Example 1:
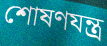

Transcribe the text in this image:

শোষণযন্ত্র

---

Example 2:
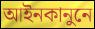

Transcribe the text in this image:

আইনকানুনে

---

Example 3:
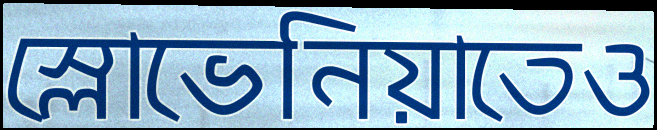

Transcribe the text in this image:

স্লোভেনিয়াতেও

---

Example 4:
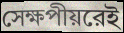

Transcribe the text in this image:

সেক্ষপীয়রেই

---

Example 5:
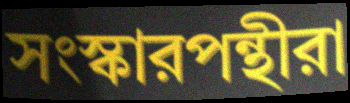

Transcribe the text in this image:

সংস্কারপন্থীরা